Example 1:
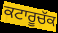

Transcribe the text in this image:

ਕਟਾਰੂਚੱਕ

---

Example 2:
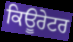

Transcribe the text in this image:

ਕਿਊਰੇਟਰ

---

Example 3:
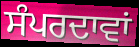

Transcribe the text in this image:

ਸੰਪਰਦਾਵਾਂ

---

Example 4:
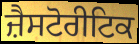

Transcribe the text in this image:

ਜ਼ੈਸਟੋਰੀਟਿਕ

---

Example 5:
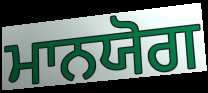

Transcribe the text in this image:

ਮਾਨਯੋਗ